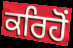
ਕਰਿਹੋਂ